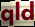
qld